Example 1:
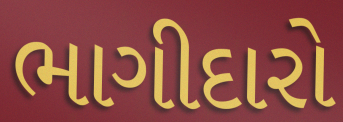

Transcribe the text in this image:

ભાગીદારો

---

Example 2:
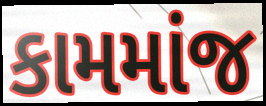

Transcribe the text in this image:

કામમાંજ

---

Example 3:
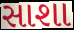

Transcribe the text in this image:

સાશા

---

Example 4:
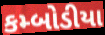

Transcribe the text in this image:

કમ્બોડીયા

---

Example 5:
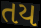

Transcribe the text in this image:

તય